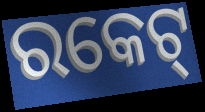
ରକେଟ୍